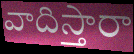
వాదిస్తారా